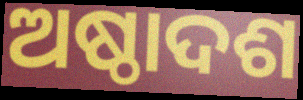
ଅଷ୍ଠାଦଶ